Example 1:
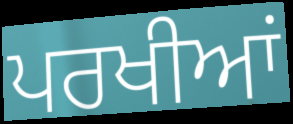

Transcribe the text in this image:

ਪਰਖੀਆਂ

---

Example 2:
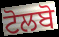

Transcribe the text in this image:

ਟੋਲਬੋ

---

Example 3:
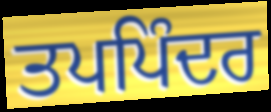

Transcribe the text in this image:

ਤਪਪਿੰਦਰ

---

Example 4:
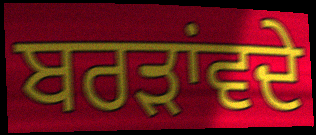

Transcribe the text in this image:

ਬਰੜਾਂਵਦੇ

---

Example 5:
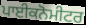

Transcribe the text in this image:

ਪਾਈਕਨੋਮੀਟਰ